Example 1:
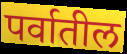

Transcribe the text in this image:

पर्वातील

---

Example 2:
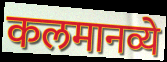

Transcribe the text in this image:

कलमानव्ये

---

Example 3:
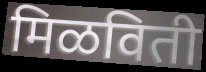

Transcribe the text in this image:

मिळविती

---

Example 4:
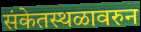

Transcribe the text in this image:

संकेतस्थळावरुन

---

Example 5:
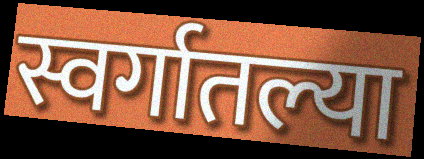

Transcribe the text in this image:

स्वर्गातल्या